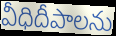
వీధిదీపాలను